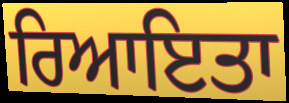
ਰਿਆਇਤਾ